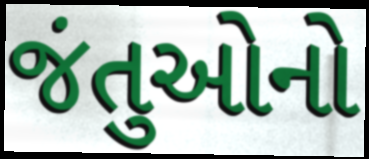
જંતુઓનો